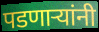
पडणाऱ्यांनी